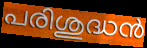
പരിശുദ്ധൻ